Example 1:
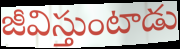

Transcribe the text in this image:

జీవిస్తుంటాడు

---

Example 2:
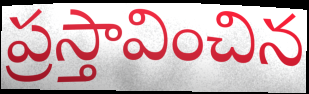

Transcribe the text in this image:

ప్రస్తావించిన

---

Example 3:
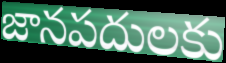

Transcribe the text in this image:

జానపదులకు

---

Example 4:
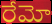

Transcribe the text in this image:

రేమో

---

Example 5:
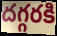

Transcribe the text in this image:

దగ్గరకి